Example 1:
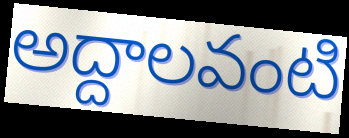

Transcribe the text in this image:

అద్దాలవంటి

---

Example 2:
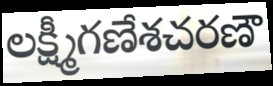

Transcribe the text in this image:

లక్ష్మీగణేశచరణౌ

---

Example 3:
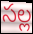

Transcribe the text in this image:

సల్ల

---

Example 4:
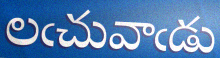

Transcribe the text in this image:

లఁచువాఁడు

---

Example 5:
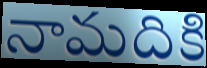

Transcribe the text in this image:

నామదికి